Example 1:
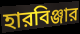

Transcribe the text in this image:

হারবিঞ্জার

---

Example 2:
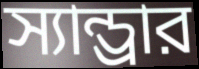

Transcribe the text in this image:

স্যান্ড্রার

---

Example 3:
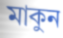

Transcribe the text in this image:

মাকুন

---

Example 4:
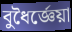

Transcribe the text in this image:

বুধৈর্জ্ঞেয়া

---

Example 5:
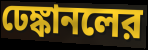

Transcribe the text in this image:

ঢেঙ্কানলের